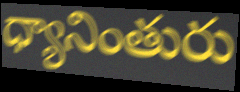
ధ్యానింతురు